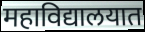
महाविद्यालयात